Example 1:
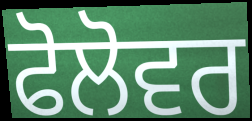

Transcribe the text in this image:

ਫੋਲੋਵਰ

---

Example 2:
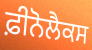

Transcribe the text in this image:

ਫ਼ੀਨੋਲੈਕਸ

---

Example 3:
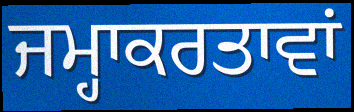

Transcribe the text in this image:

ਜਮ੍ਹਾਕਰਤਾਵਾਂ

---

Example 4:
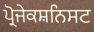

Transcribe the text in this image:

ਪ੍ਰੋਜੇਕਸ਼ਨਿਸਟ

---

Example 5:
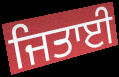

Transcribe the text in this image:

ਜਿਤਾਈ